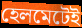
হেলমেটেই